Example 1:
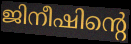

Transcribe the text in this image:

ജിനീഷിന്റെ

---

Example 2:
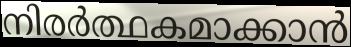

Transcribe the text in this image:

നിരർത്ഥകമാക്കാൻ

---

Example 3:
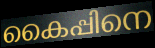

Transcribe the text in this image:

കൈപ്പിനെ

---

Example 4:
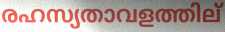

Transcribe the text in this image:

രഹസ്യതാവളത്തില്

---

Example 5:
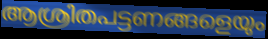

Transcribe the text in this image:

ആശ്രിതപട്ടണങ്ങളെയും